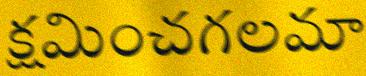
క్షమించగలమా